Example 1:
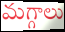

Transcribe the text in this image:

మగ్గాలు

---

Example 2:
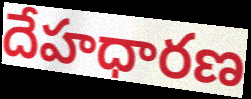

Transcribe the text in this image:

దేహధారణ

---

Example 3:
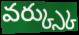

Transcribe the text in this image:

వర్క్స్కు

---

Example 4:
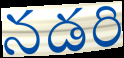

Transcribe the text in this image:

నడరి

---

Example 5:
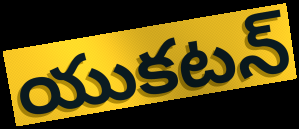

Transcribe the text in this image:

యుకటన్